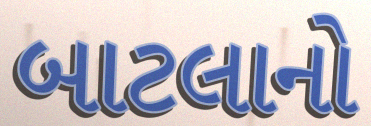
બાટલાનો